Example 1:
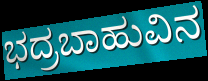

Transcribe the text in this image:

ಭದ್ರಬಾಹುವಿನ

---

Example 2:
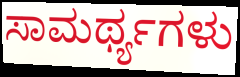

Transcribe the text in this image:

ಸಾಮರ್ಥ್ಯಗಳು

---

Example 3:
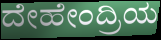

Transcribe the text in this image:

ದೇಹೇಂದ್ರಿಯ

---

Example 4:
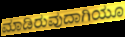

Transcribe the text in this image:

ಮಾಡಿರುವುದಾಗಿಯೂ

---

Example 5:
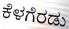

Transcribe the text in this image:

ಕೆಳಗೆರಡು